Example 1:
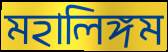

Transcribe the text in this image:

মহালিঙ্গম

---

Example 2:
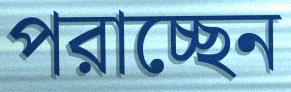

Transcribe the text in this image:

পরাচ্ছেন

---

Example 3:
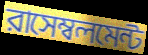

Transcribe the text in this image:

রাসেম্বলমেন্ট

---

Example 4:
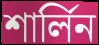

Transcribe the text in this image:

শার্লিন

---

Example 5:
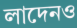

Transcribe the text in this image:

লাদেনও